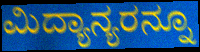
ಮಿದ್ಯಾನ್ಯರನ್ನೂ